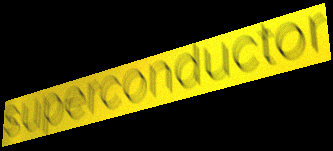
superconductor